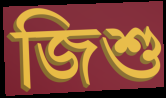
জিশু